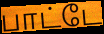
பாட்டே